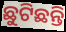
ଛୁଟିଛନ୍ତି